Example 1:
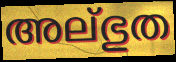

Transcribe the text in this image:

അല്ഭുത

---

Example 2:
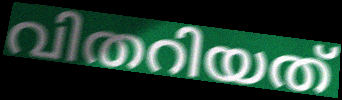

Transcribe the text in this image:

വിതറിയത്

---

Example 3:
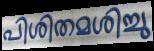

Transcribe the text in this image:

പിശിതമശിച്ചു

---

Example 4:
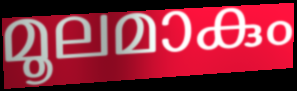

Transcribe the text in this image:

മൂലമാകും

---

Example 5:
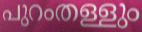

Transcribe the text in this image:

പുറംതള്ളും